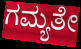
ಗಮ್ಯತೇ